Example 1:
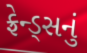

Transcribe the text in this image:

ફ્રેન્ડ્સનું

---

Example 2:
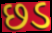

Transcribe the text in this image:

છડ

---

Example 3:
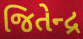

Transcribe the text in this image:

જિતેન્દ્ર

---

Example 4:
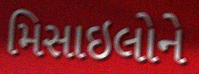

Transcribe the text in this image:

મિસાઇલોને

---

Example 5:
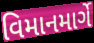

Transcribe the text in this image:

વિમાનમાર્ગે